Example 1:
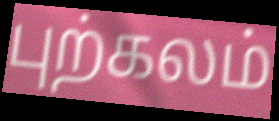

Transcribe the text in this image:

புற்கலம்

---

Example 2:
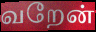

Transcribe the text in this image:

வறேன்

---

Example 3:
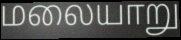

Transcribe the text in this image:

மலையாறு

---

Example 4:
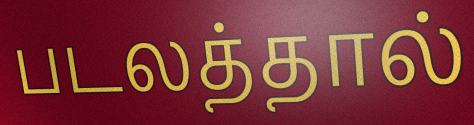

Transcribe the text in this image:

படலத்தால்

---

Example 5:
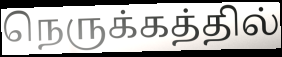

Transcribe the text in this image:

நெருக்கத்தில்